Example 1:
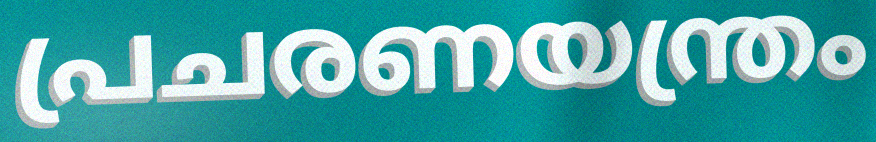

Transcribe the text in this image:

പ്രചരണയന്ത്രം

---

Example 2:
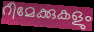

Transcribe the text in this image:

റീമേക്കുകളും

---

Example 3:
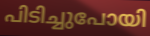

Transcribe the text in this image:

പിടിച്ചുപോയി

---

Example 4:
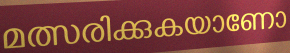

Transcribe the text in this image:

മത്സരിക്കുകയാണോ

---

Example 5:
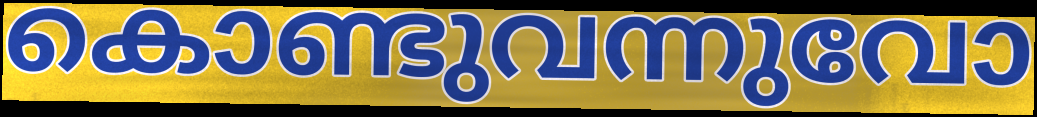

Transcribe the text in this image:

കൊണ്ടുവന്നുവോ